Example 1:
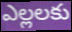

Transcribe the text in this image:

ఎల్లలకు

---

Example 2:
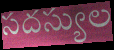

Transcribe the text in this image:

సదస్యుల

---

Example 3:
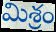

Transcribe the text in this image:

మిశ్రం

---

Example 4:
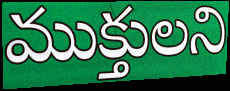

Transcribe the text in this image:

ముక్తులని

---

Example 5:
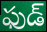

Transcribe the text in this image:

ఫుడ్